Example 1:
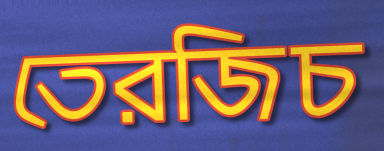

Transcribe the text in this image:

তেরজিচ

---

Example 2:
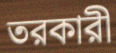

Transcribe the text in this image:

তরকারী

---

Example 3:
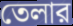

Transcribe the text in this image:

তেলার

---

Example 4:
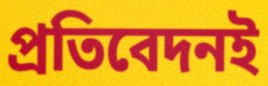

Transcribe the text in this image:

প্রতিবেদনই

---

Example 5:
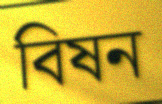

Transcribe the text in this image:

বিষন